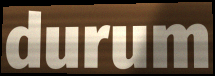
durum